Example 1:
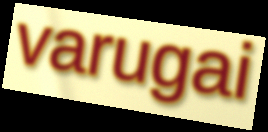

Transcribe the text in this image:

varugai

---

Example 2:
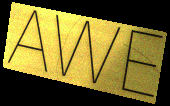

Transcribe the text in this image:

AWE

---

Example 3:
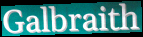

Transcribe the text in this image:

Galbraith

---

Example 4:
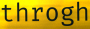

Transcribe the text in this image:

throgh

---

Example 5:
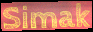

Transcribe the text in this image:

Simak